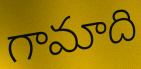
గామాది